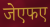
जेएफए